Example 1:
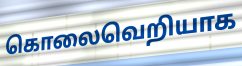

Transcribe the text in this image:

கொலைவெறியாக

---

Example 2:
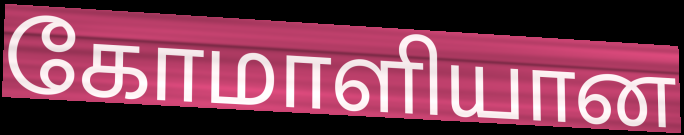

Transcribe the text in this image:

கோமாளியான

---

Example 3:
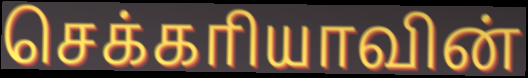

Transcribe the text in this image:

செக்கரியாவின்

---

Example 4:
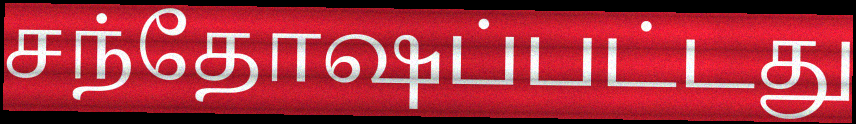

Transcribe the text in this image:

சந்தோஷப்பட்டது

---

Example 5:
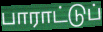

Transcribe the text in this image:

பாராட்டுப்